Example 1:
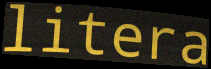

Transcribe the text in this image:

litera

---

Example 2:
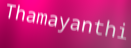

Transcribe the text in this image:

Thamayanthi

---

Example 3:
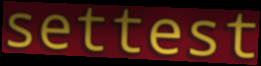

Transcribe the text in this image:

settest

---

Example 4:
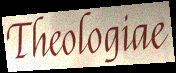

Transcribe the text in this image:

Theologiae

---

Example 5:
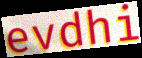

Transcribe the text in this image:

evdhi